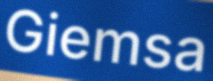
Giemsa